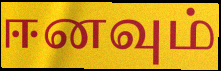
ஈனவும்